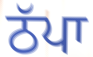
ਠੱਪਾ